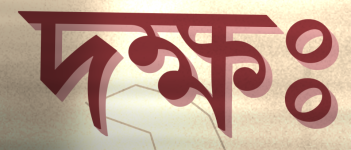
দক্ষঃ